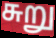
சுறு